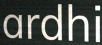
ardhi